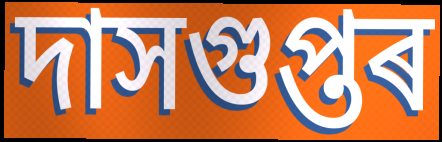
দাসগুপ্তৰ